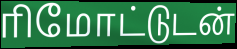
ரிமோட்டுடன்